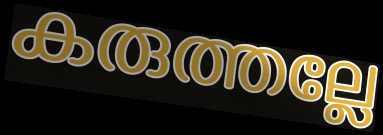
കരുത്തല്ലേ